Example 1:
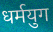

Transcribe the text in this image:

धर्मयुग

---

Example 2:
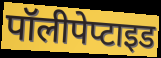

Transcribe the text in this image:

पॉलीपेप्टाइड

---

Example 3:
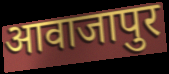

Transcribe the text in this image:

आवाजापुर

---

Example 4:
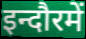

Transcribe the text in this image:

इन्दौरमें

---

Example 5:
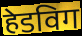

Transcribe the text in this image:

हेडविग